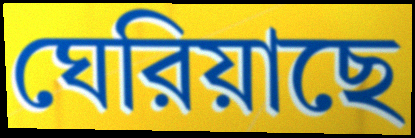
ঘেরিয়াছে